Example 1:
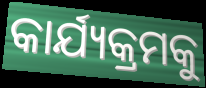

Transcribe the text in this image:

କାର୍ଯ୍ୟକ୍ରମକୁ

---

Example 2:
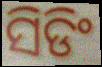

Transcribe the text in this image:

ସିଡିଂ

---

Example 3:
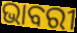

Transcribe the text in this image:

ଭାବରୀ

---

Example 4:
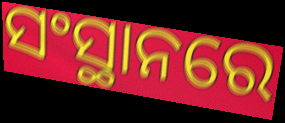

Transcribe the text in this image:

ସଂସ୍ଥାନରେ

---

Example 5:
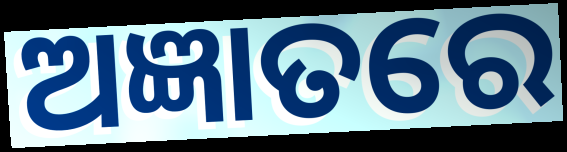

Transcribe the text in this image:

ଅଜ୍ଞାତରେ